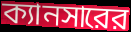
ক্যানসারের